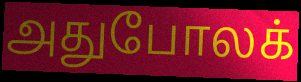
அதுபோலக்